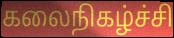
கலைநிகழ்ச்சி